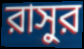
রাসুর